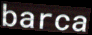
barca